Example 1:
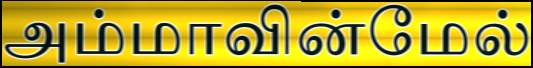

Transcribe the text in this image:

அம்மாவின்மேல்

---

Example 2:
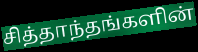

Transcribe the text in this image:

சித்தாந்தங்களின்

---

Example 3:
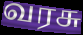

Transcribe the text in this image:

வரசு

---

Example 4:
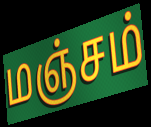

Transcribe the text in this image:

மஞ்சம்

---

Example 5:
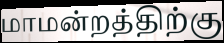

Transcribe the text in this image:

மாமன்றத்திற்கு